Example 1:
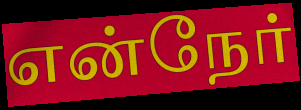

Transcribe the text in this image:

என்நேர்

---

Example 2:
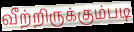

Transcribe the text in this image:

வீற்றிருக்கும்படி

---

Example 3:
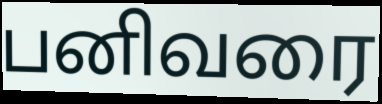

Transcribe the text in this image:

பனிவரை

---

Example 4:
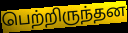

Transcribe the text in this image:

பெற்றிருந்தன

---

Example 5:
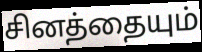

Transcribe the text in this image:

சினத்தையும்